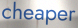
cheaper